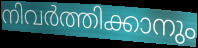
നിവർത്തിക്കാനും